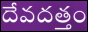
దేవదత్తం